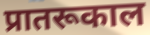
प्रातरूकाल